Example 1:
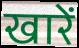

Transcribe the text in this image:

खारें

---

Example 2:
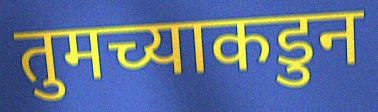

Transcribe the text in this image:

तुमच्याकडुन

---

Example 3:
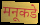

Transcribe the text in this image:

मनूकडे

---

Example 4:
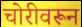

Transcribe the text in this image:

चोरीवरून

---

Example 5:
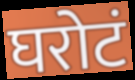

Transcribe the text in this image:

घरोटं